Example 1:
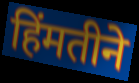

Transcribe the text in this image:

हिंमतीने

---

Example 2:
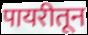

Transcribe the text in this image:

पायरीतून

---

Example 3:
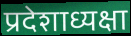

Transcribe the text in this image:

प्रदेशाध्यक्षा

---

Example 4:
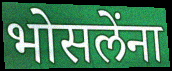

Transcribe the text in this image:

भोसलेंना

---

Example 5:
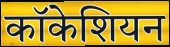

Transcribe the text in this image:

कॉकेशियन